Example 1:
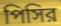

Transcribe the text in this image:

পিসির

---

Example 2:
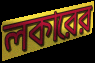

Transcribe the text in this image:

লকারের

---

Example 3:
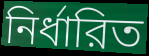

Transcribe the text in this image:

নির্ধারিত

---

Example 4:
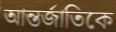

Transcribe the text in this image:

আন্তর্জাতিকে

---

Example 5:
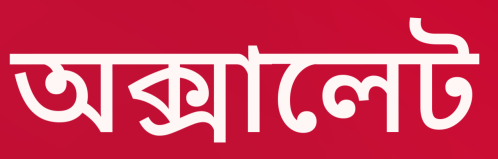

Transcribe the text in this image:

অক্সালেট